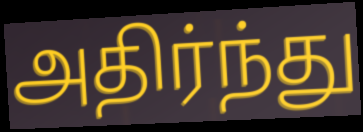
அதிர்ந்து